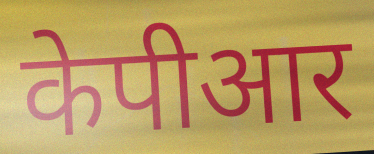
केपीआर